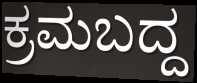
ಕ್ರಮಬದ್ದ